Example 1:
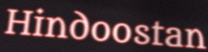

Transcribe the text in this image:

Hindoostan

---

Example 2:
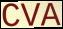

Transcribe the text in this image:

CVA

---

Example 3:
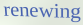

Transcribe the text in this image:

renewing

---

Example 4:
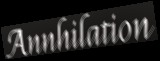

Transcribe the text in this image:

Annhilation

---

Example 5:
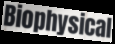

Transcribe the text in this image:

Biophysical